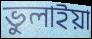
ভুলাইয়া